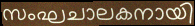
സംഘചാലകനായി